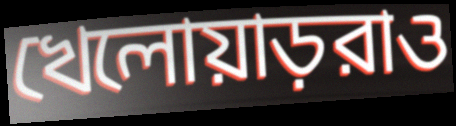
খেলোয়াড়রাও